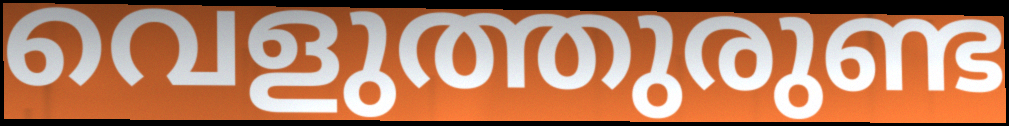
വെളുത്തുരുണ്ട